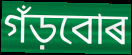
গঁড়বোৰ